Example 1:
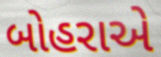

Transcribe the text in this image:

બોહરાએ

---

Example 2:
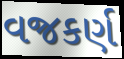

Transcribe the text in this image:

વજ્રકર્ણ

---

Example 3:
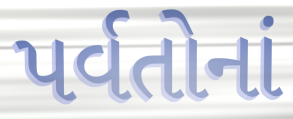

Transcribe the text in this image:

પર્વતોનાં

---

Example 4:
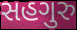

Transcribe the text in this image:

સહગુરુ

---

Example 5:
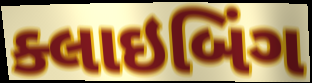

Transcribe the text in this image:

ક્લાઇબિંગ